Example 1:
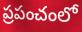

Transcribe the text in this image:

ప్రపంచంలో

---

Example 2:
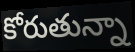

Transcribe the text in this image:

కోరుతున్నా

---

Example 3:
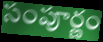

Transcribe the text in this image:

సంపూర్ణం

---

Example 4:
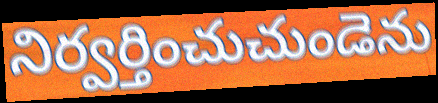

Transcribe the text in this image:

నిర్వర్తించుచుండెను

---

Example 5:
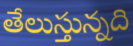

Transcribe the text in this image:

తేలుస్తున్నది